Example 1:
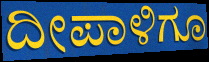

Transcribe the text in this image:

ದೀಪಾಳಿಗೂ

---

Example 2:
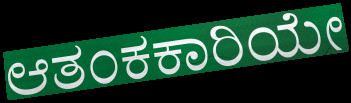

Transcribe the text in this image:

ಆತಂಕಕಾರಿಯೇ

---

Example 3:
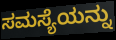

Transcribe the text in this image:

ಸಮಸ್ಯೆಯನ್ನು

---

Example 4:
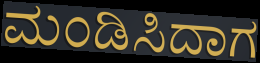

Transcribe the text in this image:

ಮಂಡಿಸಿದಾಗ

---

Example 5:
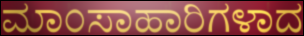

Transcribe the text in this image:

ಮಾಂಸಾಹಾರಿಗಳಾದ